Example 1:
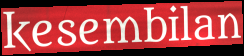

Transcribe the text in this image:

kesembilan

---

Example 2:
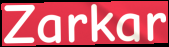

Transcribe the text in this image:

Zarkar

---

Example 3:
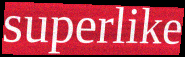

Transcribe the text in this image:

superlike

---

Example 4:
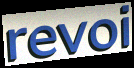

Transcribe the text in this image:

revoi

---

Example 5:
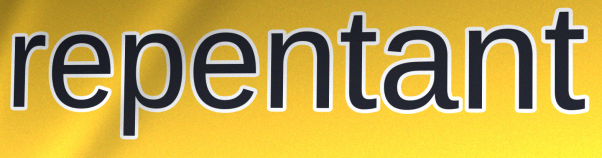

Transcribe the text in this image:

repentant